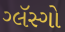
ગ્લૅસ્ગો